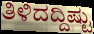
ತಿಳಿದದ್ದಿಷ್ಟು